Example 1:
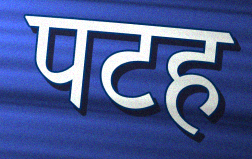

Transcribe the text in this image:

पटह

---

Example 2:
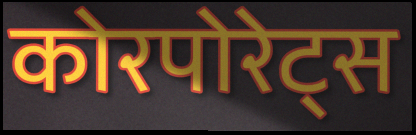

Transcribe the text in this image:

कोरपोरेट्स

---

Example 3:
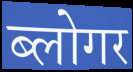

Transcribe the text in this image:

ब्लोगर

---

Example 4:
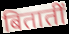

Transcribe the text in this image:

बितातीं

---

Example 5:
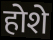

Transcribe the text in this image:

होशे